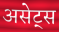
असेट्स